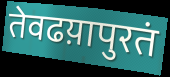
तेवढय़ापुरतं